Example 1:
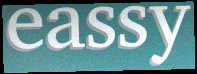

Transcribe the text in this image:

eassy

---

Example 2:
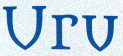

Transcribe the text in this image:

Uru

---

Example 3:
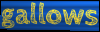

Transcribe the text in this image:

gallows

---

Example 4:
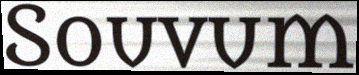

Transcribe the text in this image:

Souvum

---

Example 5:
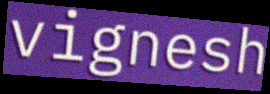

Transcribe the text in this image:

vignesh